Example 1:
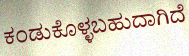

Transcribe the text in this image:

ಕಂಡುಕೊಳ್ಳಬಹುದಾಗಿದೆ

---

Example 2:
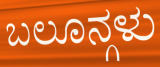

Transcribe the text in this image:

ಬಲೂನ್ಗಳು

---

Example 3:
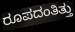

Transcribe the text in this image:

ರೂಪದಂತಿತ್ತು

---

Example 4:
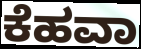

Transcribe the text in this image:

ಕೆಹವಾ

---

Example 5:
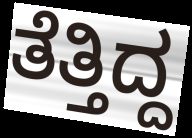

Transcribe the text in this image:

ತೆತ್ತಿದ್ದ